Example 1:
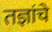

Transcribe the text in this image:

तज्ञांचे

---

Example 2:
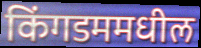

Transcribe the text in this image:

किंगडममधील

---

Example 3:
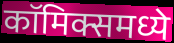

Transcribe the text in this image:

कॉमिक्समध्ये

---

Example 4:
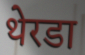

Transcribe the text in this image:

थेरडा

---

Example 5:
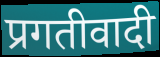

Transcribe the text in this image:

प्रगतीवादी